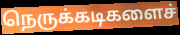
நெருக்கடிகளைச்